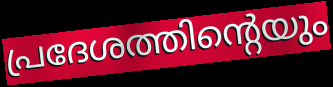
പ്രദേശത്തിന്റെയും